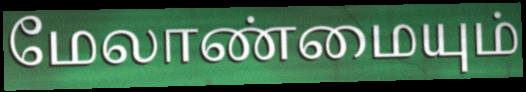
மேலாண்மையும்